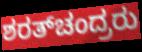
ಶರತ್‌ಚಂದ್ರರು